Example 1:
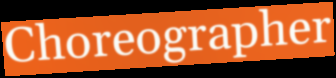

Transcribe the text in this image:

Choreographer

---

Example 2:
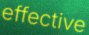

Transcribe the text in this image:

effective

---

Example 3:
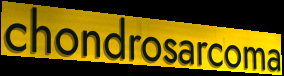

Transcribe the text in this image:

chondrosarcoma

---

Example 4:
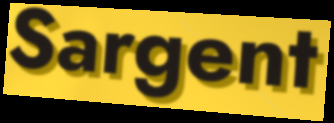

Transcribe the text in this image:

Sargent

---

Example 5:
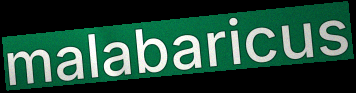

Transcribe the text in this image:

malabaricus